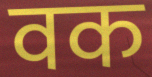
वक